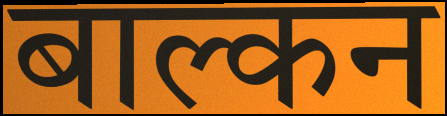
बाल्कन